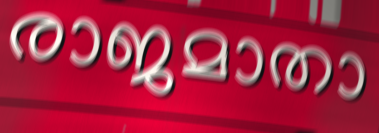
രാജമാതാ